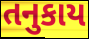
તનુકાય